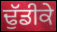
ਢੁੱਡੀਕੇ